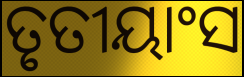
ତୃତୀୟାଂସ